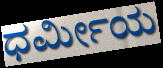
ಧರ್ಮೀಯ